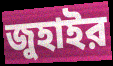
জুহাইর